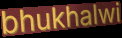
bhukhalwi